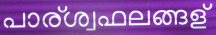
പാര്ശ്വഫലങ്ങള്